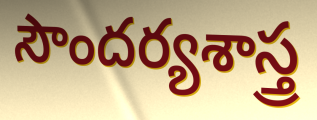
సౌందర్యశాస్త్ర